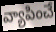
వ్యాపించే